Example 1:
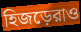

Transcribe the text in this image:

হিজড়েরাও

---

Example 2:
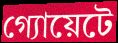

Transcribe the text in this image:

গ্যোয়েটে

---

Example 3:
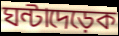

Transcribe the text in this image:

ঘন্টাদেড়েক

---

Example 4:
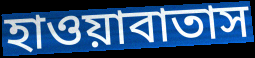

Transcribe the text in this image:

হাওয়াবাতাস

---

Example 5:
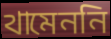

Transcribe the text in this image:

থামেননি